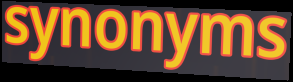
synonyms